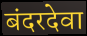
बंदरदेवा